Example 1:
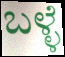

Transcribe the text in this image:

ಬಳ್ಳೆ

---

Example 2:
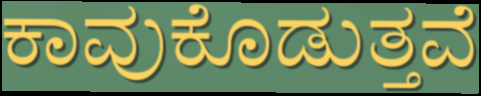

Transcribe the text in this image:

ಕಾವುಕೊಡುತ್ತವೆ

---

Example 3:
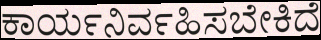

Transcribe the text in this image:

ಕಾರ್ಯನಿರ್ವಹಿಸಬೇಕಿದೆ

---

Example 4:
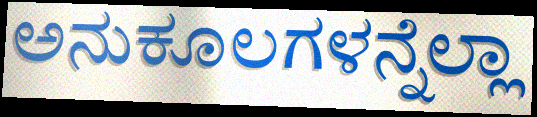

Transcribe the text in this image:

ಅನುಕೂಲಗಳನ್ನೆಲ್ಲಾ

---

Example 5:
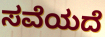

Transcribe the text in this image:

ಸವೆಯದೆ